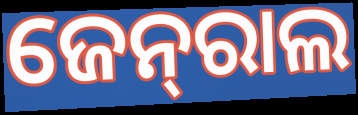
ଜେନ୍‌ରାଲ